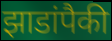
झाडांपैकी